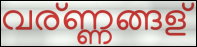
വര്ണ്ണങ്ങള്